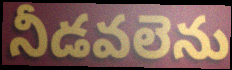
నీడవలెను